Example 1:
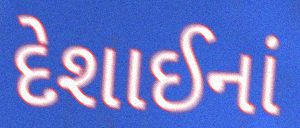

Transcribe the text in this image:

દેશાઈનાં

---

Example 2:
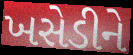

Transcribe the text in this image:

ખસેડીને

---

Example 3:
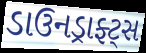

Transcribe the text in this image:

ડાઉનડ્રાફ્ટ્સ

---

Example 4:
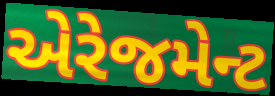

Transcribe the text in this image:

એરેજમેન્ટ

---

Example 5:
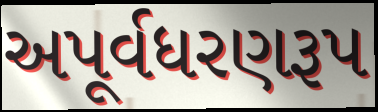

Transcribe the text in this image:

અપૂર્વધરણરૂપ